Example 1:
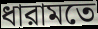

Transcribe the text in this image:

ধারামতে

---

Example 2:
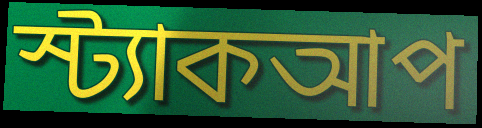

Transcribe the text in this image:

স্ট্যাকআপ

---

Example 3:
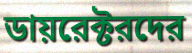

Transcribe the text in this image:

ডায়রেক্টরদের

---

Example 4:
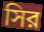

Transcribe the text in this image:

সির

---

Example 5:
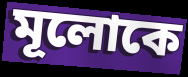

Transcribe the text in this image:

মূলোকে